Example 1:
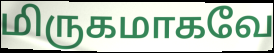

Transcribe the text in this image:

மிருகமாகவே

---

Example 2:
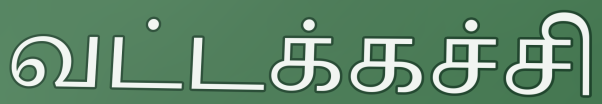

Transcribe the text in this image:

வட்டக்கச்சி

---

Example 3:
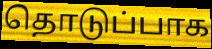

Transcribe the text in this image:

தொடுப்பாக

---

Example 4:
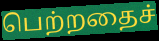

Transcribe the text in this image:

பெற்றதைச்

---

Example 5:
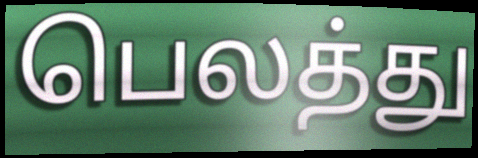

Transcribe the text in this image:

பெலத்து